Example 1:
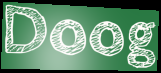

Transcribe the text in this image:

Doog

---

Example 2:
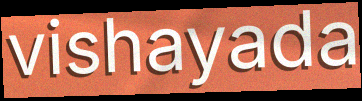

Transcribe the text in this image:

vishayada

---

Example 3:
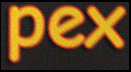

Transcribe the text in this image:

pex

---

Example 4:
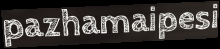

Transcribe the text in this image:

pazhamaipesi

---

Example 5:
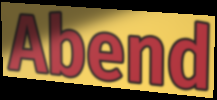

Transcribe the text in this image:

Abend